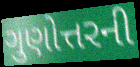
ગુણોત્તરની